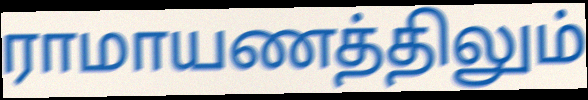
ராமாயணத்திலும்